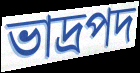
ভাদ্রপদ